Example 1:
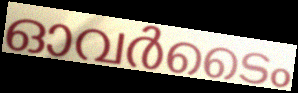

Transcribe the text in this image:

ഓവർടൈം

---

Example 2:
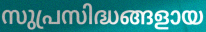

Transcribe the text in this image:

സുപ്രസിദ്ധങ്ങളായ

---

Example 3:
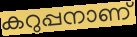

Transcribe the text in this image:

കറുപ്പനാണ്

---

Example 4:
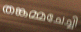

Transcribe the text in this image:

തങ്കമ്മചേച്ചി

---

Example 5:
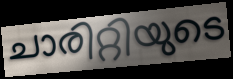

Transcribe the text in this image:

ചാരിറ്റിയുടെ